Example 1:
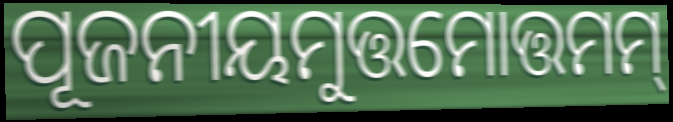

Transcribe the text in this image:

ପୂଜନୀୟମୁତ୍ତମୋତ୍ତମମ୍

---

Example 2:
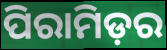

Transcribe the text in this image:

ପିରାମିଡ଼ର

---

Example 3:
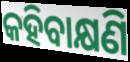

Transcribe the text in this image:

କହିବାକ୍ଷଣି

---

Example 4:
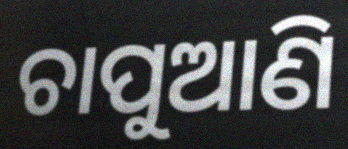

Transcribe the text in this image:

ଚାପୁଆଣି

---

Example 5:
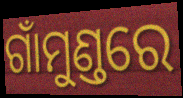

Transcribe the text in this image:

ଗାଁମୁଣ୍ଡରେ